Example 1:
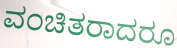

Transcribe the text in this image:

ವಂಚಿತರಾದರೂ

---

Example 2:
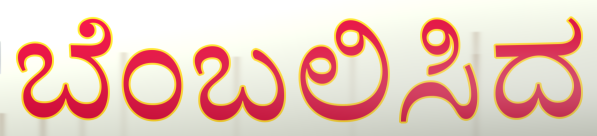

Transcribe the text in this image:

ಬೆಂಬಲಿಸಿದ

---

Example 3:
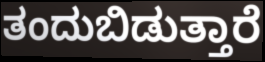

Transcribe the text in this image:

ತಂದುಬಿಡುತ್ತಾರೆ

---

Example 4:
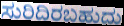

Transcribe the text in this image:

ಸುರಿದಿರಬಹುದು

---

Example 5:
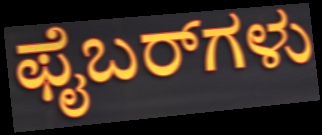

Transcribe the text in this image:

ಫೈಬರ್‌ಗಳು